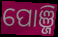
ପୋଞ୍ଜି